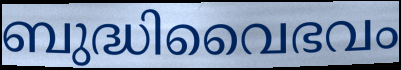
ബുദ്ധിവൈഭവം